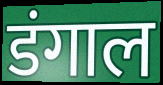
डंगाल